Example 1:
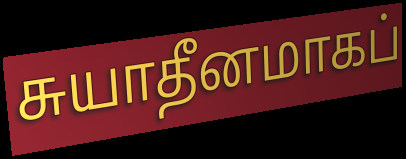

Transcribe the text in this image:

சுயாதீனமாகப்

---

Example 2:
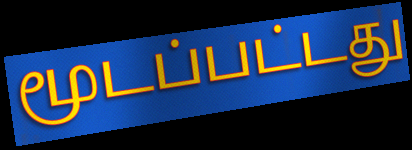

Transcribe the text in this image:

மூடப்பட்டது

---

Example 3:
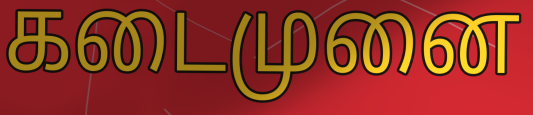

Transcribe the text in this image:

கடைமுனை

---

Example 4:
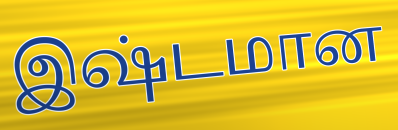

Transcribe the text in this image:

இஷ்டமான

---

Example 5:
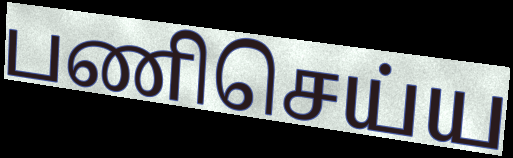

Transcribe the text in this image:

பணிசெய்ய